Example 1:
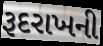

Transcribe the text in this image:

રૂદરાખની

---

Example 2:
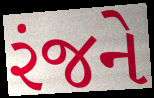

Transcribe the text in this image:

રંજને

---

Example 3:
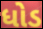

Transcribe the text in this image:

ધોડ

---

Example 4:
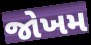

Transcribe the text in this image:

જોખમ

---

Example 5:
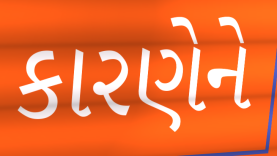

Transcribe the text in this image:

કારણેને